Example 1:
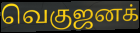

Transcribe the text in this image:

வெகுஜனக்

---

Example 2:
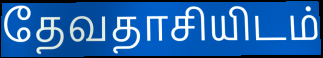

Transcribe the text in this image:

தேவதாசியிடம்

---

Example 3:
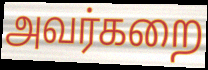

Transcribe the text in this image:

அவர்கறை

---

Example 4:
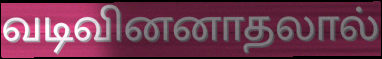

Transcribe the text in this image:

வடிவினனாதலால்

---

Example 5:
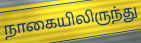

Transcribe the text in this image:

நாகையிலிருந்து